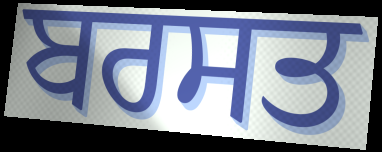
ਬਰਸਤ